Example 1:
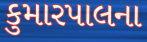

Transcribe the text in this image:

કુમારપાલના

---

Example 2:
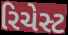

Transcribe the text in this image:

રિચેસ્ટ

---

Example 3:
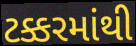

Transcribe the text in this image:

ટક્કરમાંથી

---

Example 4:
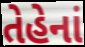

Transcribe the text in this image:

તેહેનાં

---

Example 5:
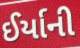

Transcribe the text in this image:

ઈર્યાની